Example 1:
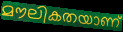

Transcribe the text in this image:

മൗലികതയാണ്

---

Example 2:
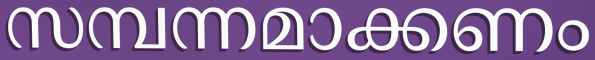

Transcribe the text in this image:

സമ്പന്നമാക്കണം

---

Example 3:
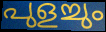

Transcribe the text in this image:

പുളച്ചും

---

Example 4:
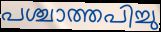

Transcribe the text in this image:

പശ്ചാത്തപിച്ചു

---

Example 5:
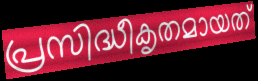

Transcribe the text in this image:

പ്രസിദ്ധീകൃതമായത്